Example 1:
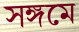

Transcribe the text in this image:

সঙ্গমে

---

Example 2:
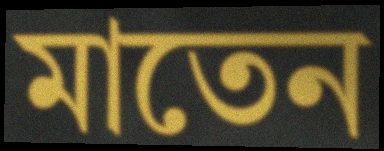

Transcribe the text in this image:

মাতেন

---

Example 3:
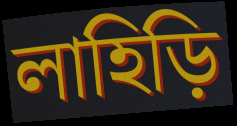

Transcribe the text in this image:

লাহিড়ি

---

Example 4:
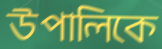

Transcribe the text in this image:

উপালিকে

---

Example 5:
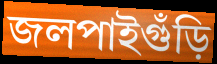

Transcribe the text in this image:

জলপাইগুঁড়ি